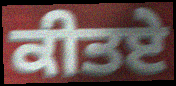
ਕੀਤਏ